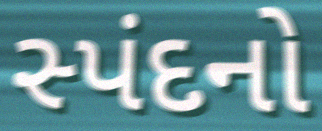
સ્પંદનો